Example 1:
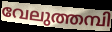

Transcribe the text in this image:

വേലുത്തമ്പി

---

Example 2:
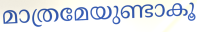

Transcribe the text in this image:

മാത്രമേയുണ്ടാകൂ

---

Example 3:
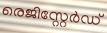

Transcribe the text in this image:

രെജിസ്റ്റേർഡ്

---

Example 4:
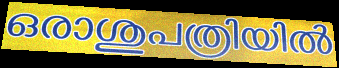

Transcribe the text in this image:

ഒരാശുപത്രിയിൽ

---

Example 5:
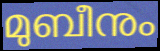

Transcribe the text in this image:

മുബീനും